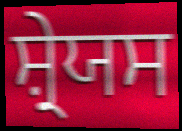
ਸ਼੍ਰੇਯਸ